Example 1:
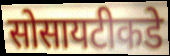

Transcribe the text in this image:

सोसायटीकडे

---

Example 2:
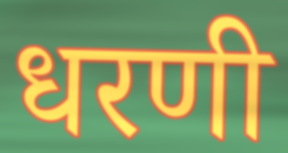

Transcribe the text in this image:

धरणी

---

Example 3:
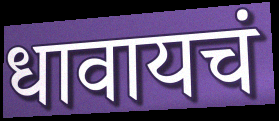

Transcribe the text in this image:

धावायचं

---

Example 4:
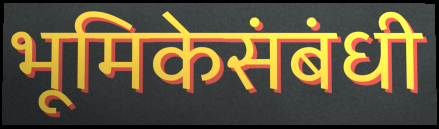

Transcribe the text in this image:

भूमिकेसंबंधी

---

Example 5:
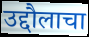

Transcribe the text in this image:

उद्दौलाचा